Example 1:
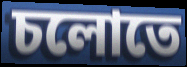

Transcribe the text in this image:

চলোতে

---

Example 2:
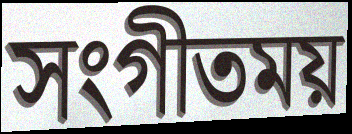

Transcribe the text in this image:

সংগীতময়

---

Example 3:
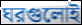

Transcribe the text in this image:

ঘরগুলোই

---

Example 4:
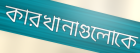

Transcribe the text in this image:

কারখানাগুলোকে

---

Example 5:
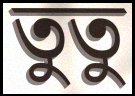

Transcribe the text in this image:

তুতু